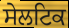
ਸੇਲਟਿਕ